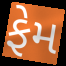
ફેમ